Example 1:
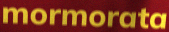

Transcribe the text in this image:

mormorata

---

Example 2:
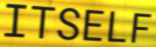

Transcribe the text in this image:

ITSELF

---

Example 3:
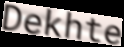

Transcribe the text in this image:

Dekhte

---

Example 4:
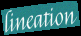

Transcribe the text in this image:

lineation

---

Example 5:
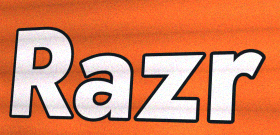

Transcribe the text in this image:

Razr